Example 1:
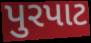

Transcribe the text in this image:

પુરપાટ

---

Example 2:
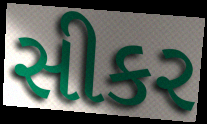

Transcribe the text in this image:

સીકર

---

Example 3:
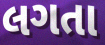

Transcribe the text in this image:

લગતા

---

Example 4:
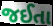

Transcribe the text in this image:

જઈતા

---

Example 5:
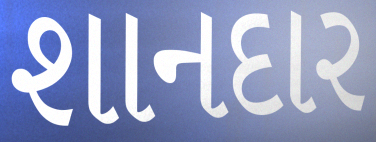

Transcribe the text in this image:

શાનદાર